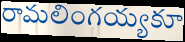
రామలింగయ్యకూ